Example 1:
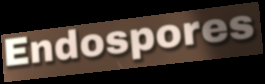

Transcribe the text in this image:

Endospores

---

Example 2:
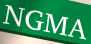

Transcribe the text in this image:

NGMA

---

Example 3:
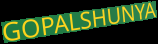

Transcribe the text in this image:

GOPALSHUNYA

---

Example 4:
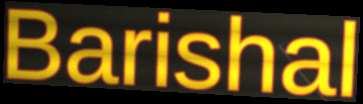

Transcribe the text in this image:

Barishal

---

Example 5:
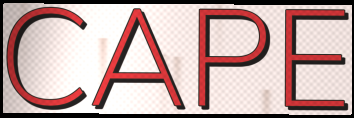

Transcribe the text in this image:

CAPE